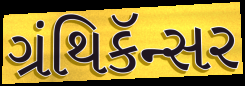
ગ્રંથિકૅન્સર